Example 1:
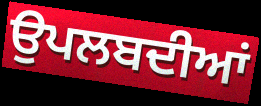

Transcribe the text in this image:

ਉਪਲਬਦੀਆਂ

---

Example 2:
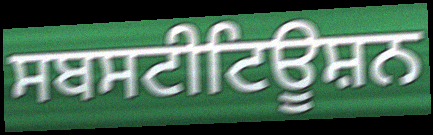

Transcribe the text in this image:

ਸਬਸਟੀਟਿਊਸ਼ਨ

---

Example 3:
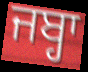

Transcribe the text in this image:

ਜਬ੍ਹਾ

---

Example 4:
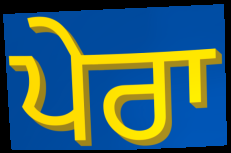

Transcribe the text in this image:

ਪੇਰਾ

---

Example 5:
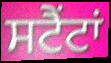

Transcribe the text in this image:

ਸਟੈਂਟਾਂ